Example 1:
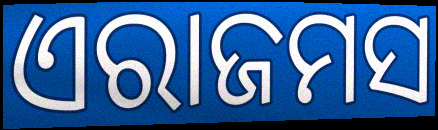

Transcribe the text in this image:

ଏରାଜମସ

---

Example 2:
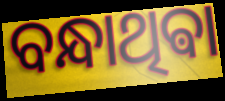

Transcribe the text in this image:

ବନ୍ଧାଥିଵା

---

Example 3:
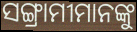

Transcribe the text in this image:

ସଙ୍ଗ୍ରାମୀମାନଙ୍କୁ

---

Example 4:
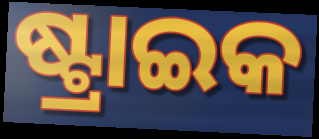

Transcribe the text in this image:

ଷ୍ଟ୍ରାଇକ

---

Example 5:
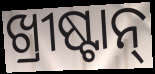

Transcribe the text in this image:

ଖ୍ରୀଷ୍ଟାନ୍